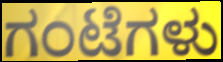
ಗಂಟೆಗಳು